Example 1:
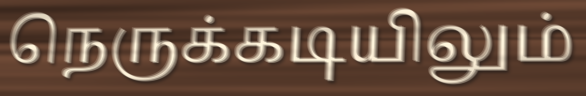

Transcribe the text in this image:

நெருக்கடியிலும்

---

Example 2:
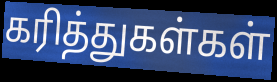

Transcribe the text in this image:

கரித்துகள்கள்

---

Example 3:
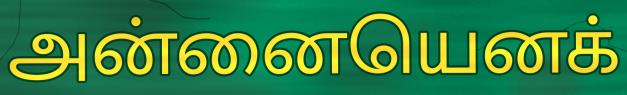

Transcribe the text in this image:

அன்னையெனக்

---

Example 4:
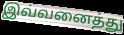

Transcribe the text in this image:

இவ்வனைத்து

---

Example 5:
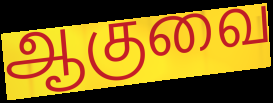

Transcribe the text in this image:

ஆகுவை